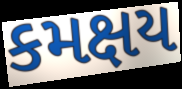
કમક્ષય